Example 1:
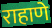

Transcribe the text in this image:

राहाणे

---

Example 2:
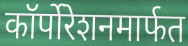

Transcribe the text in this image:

कॉर्पोरेशनमार्फत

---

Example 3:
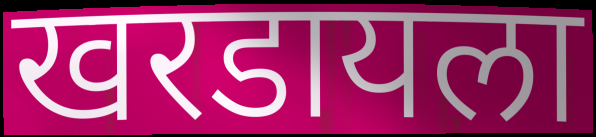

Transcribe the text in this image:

खरडायला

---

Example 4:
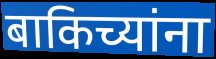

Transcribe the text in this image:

बाकिच्यांना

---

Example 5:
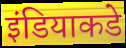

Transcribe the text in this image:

इंडियाकडे